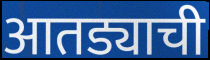
आतड्याची